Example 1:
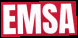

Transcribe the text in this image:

EMSA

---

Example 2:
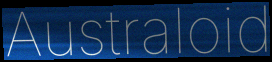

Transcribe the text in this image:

Australoid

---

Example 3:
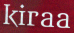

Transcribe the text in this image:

kiraa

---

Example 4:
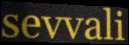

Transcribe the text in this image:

sevvali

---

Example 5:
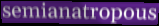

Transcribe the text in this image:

semianatropous